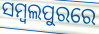
ସମ୍ବଲପୁରରେ